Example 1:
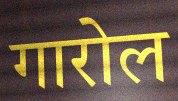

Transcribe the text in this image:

गारोल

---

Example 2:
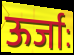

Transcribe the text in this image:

ऊर्जाः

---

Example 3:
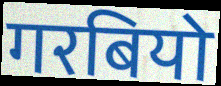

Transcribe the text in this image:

गरबियो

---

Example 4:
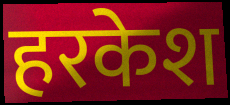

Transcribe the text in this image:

हरकेश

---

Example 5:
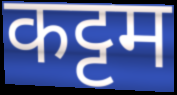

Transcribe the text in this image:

कट्टम